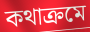
কথাক্রমে